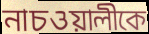
নাচওয়ালীকে